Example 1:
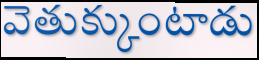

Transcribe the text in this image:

వెతుక్కుంటాడు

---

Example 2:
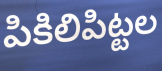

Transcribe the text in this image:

పికిలిపిట్టల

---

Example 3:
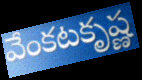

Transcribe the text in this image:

వేంకటకృష్ణ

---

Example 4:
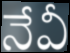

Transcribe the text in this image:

నేవీ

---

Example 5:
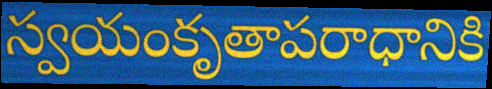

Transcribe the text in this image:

స్వయంకృతాపరాధానికి